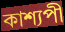
কাশ্যপী